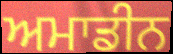
ਅਮਾਡੀਨ